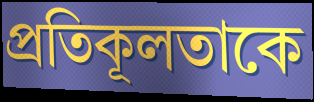
প্রতিকূলতাকে